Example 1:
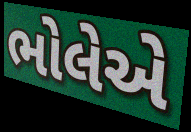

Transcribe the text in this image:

ભોલેએ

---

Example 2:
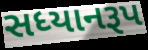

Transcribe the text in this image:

સધ્યાનરૂપ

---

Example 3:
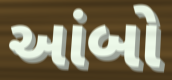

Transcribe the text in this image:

આંબો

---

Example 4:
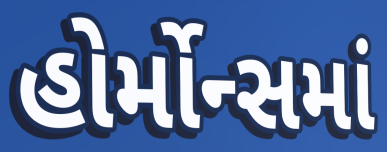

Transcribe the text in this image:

હોર્મોન્સમાં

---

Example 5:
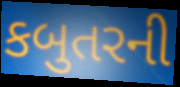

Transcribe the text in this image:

કબુતરની